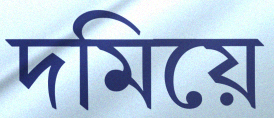
দমিয়ে